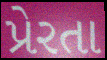
પ્રેરતા